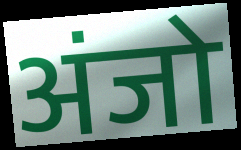
अंजो